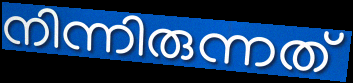
നിന്നിരുന്നത്